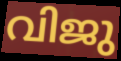
വിജു